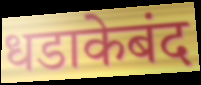
धडाकेबंद